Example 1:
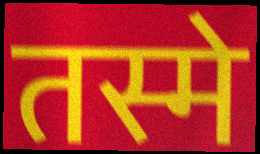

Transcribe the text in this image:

तस्मे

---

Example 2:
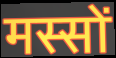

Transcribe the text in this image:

मस्सों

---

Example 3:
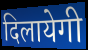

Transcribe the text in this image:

दिलायेगी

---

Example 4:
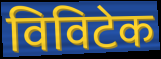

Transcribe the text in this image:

विविटेक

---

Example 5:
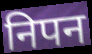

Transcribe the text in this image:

निपन